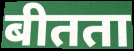
बीतता